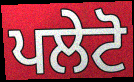
ਪਲੇਟੋ